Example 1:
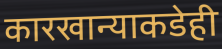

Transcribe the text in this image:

कारखान्याकडेही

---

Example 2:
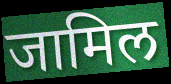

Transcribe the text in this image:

जामिल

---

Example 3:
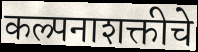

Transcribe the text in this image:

कल्पनाशक्तीचे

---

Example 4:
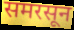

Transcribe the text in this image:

समरसून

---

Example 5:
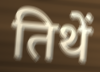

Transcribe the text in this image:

तिथें